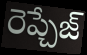
రెప్చేజ్